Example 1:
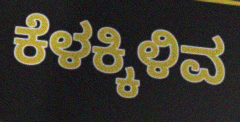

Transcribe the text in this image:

ಕೆಳಕ್ಕಿಳಿವ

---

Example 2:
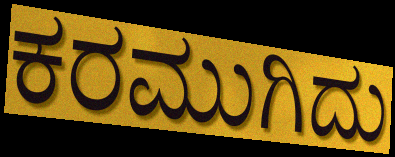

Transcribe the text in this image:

ಕರಮುಗಿದು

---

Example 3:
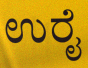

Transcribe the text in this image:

ಉರೈ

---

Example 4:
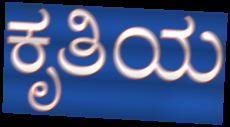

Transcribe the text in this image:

ಕೃತಿಯ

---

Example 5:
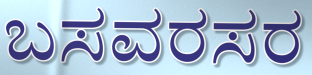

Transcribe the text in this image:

ಬಸವರಸರ